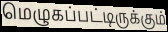
மெழுகப்பட்டிருக்கும்